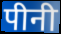
पीनी